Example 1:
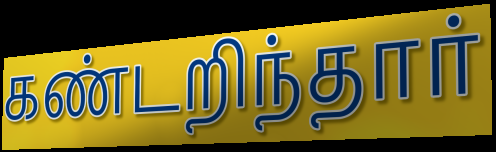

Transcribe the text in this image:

கண்டறிந்தார்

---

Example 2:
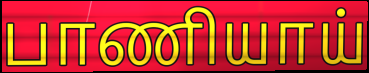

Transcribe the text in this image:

பாணியாய்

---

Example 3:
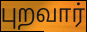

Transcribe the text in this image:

புறவார்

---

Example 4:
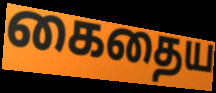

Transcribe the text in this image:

கைதைய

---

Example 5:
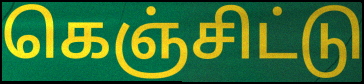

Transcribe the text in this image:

கெஞ்சிட்டு